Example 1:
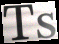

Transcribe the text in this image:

Ts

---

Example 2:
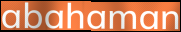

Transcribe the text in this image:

abahaman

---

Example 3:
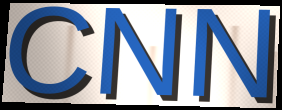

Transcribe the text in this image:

CNN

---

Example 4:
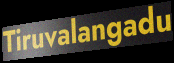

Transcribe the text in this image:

Tiruvalangadu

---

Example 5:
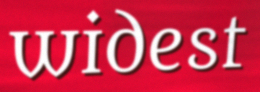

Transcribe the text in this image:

widest